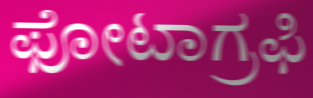
ಫೋಟಾಗ್ರಫಿ